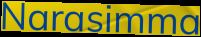
Narasimma